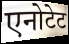
एनोटेट